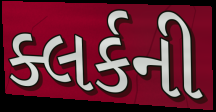
ક્લર્કની